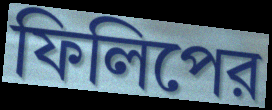
ফিলিপের